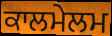
ਕਾਲਮੇਲਮ